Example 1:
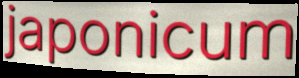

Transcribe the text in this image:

japonicum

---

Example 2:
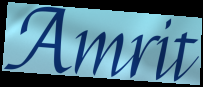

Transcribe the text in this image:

Amrit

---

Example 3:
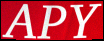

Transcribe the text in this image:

APY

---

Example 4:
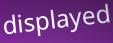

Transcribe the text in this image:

displayed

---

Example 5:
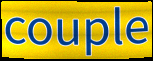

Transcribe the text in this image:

couple